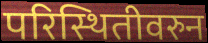
परिस्थितीवरुन